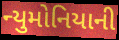
ન્યુમોનિયાની